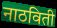
नाठविती